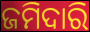
ଜମିଦାରି